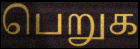
பெறுக